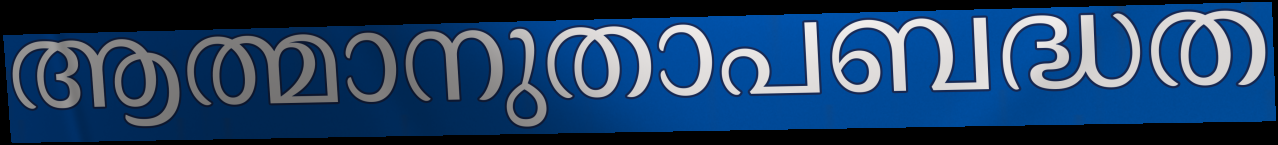
ആത്മാനുതാപബദ്ധത